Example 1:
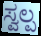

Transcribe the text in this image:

ಸ್ವಲ್ಪ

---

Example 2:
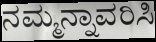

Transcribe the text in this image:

ನಮ್ಮನ್ನಾವರಿಸಿ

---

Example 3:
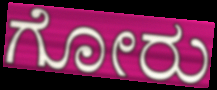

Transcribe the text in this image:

ಗೋರು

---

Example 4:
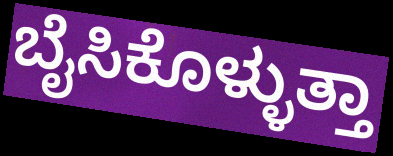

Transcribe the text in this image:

ಬೈಸಿಕೊಳ್ಳುತ್ತಾ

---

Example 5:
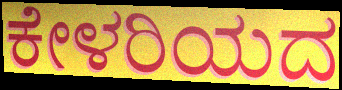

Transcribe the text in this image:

ಕೇಳರಿಯದ